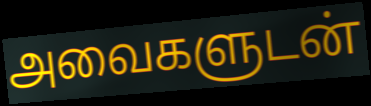
அவைகளுடன்